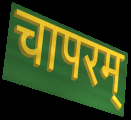
चापरम्